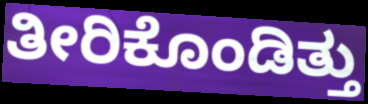
ತೀರಿಕೊಂಡಿತ್ತು